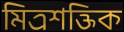
মিত্ৰশক্তিক